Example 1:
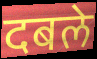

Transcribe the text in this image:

दबले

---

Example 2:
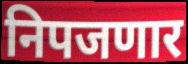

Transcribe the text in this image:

निपजणार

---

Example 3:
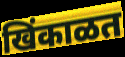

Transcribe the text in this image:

खिंकाळत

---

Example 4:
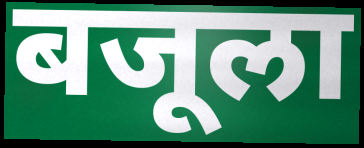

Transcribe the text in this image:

बजूला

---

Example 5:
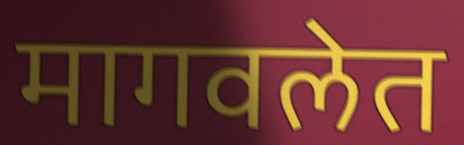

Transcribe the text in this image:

मागवलेत